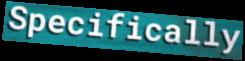
Specifically